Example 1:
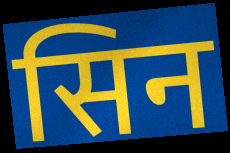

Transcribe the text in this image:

सिन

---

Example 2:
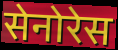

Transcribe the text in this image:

सेनोरेस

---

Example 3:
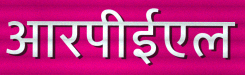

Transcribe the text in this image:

आरपीईएल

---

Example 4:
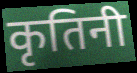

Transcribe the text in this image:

कृतिनी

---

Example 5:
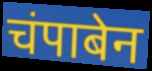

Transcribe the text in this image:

चंपाबेन